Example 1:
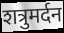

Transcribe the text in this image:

शत्रुमर्दन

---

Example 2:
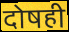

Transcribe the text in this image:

दोषही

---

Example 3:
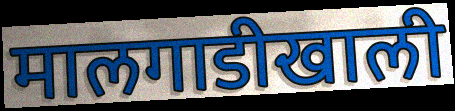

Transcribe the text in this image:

मालगाडीखाली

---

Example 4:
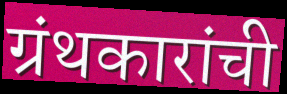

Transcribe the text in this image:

ग्रंथकारांची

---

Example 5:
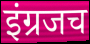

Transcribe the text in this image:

इंग्रजच